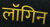
लॉगिन